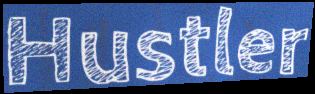
Hustler